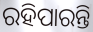
ରହିପାରନ୍ତି